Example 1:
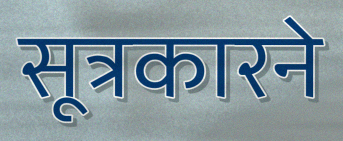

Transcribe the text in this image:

सूत्रकारने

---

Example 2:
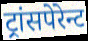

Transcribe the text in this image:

ट्रांसपेरेन्ट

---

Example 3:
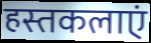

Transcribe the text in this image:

हस्तकलाएं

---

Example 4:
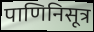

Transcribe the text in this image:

पाणिनिसूत्र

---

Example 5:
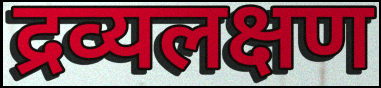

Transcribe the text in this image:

द्रव्यलक्षण